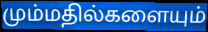
மும்மதில்களையும்